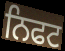
ਨਿਫਟ